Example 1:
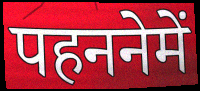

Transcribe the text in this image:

पहननेमें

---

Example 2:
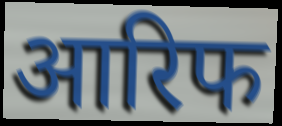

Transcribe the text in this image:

आरिफ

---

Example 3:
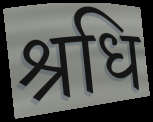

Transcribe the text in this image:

श्रधि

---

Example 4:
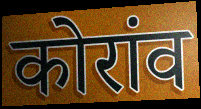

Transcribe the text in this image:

कोरांव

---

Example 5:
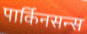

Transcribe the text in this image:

पार्किनसन्स